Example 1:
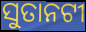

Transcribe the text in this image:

ସୁତାନଟୀ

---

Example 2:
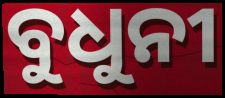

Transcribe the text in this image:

ବୁଧୁନୀ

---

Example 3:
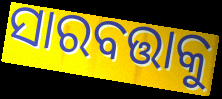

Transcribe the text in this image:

ସାରବତ୍ତାକୁ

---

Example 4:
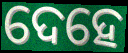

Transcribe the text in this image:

ଦେହେ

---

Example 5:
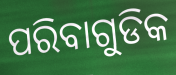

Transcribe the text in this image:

ପରିବାଗୁଡିକ